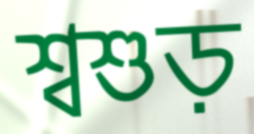
শ্বশুড়